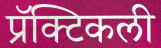
प्रॅक्टिकली